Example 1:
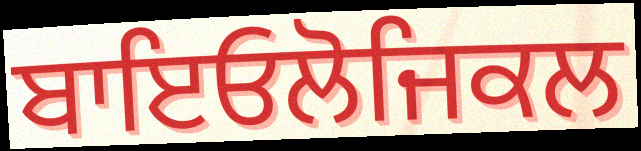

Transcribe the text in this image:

ਬਾਇਓਲੋਜਿਕਲ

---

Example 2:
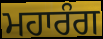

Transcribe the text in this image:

ਮਹਾਰੰਗ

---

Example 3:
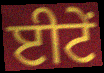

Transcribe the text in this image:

ਈਟੇਂ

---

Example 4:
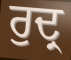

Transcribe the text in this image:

ਰੁਦ੍ਰ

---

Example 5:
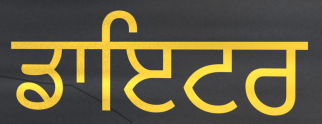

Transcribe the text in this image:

ਡਾਇਟਰ